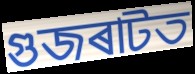
গুজৰাটত